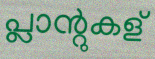
പ്ലാന്റുകള്